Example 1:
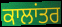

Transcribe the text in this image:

ਕਾਲਾਂਤਰ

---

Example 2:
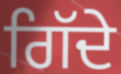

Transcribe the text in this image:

ਗਿੱਦੇ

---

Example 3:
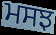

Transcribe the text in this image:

ਮਸਝ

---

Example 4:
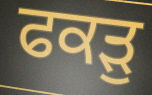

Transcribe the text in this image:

ਫਕੜੁ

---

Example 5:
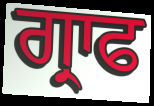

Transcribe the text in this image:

ਗ੍ਰਾਫ